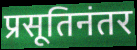
प्रसूतिनंतर